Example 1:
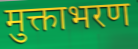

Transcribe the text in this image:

मुक्ताभरण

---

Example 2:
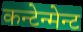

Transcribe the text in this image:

कन्टेन्मेन्ट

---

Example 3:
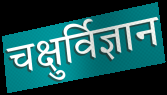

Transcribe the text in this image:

चक्षुर्विज्ञान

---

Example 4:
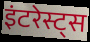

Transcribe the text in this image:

इंटरेस्ट्स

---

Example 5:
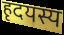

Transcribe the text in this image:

हृदयस्य